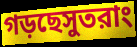
গড়ছেসুতরাং